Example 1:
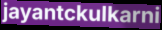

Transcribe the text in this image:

jayantckulkarni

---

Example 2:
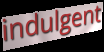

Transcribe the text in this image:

indulgent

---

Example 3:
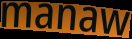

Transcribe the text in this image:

manaw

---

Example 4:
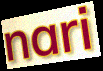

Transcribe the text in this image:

nari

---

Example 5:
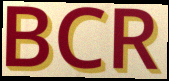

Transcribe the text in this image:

BCR